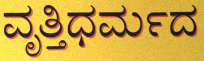
ವೃತ್ತಿಧರ್ಮದ